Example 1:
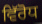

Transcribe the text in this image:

ਵਿੱਰੋਧ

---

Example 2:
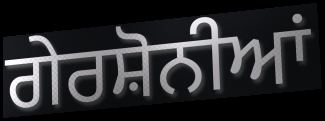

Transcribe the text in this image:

ਗੇਰਸ਼ੋਨੀਆਂ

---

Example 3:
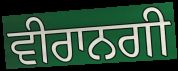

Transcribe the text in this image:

ਵੀਰਾਨਗੀ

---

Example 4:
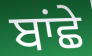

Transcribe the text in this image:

ਬਾਂਛੇ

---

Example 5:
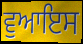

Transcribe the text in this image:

ਵੁਆਇਸ